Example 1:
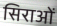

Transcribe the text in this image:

सिराओं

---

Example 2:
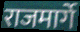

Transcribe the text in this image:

राजमार्गे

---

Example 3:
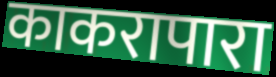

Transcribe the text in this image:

काकरापारा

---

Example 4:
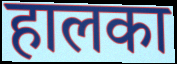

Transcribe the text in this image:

हालका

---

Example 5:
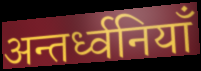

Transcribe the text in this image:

अन्तर्ध्वनियाँ